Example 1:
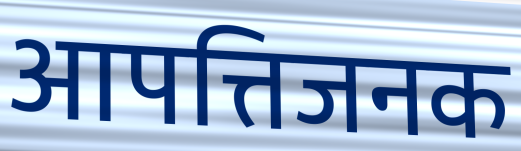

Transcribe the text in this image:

आपत्तिजनक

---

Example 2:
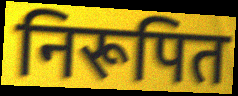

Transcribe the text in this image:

निरूपित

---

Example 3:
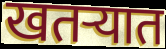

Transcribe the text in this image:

खतऱ्यात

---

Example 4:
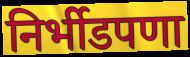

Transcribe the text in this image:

निर्भीडपणा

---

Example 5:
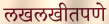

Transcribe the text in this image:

लखलखीतपणे